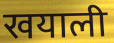
खयाली